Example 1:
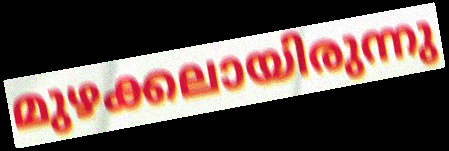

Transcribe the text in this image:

മുഴക്കലായിരുന്നു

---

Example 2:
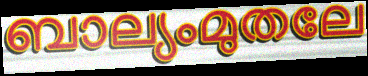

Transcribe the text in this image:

ബാല്യംമുതലേ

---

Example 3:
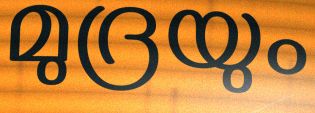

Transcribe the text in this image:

മുദ്രയും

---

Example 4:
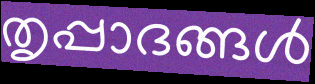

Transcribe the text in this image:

തൃപ്പാദങ്ങൾ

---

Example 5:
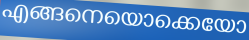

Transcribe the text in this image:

എങ്ങനെയൊക്കെയോ